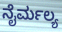
ನೈರ್ಮಲ್ಯ